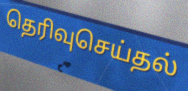
தெரிவுசெய்தல்